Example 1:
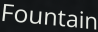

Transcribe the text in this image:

Fountain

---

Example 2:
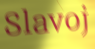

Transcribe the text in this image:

Slavoj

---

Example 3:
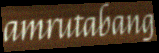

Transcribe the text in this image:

amrutabang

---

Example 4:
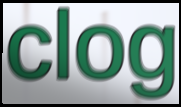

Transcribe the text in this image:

clog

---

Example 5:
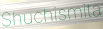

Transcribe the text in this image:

Shuchismita